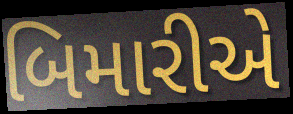
બિમારીએ